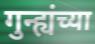
गुन्ह्यंच्या